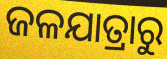
ଜଳଯାତ୍ରାରୁ